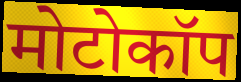
मोटोकॉप